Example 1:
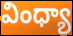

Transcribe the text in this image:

వింధ్యా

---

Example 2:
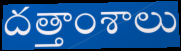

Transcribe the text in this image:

దత్తాంశాలు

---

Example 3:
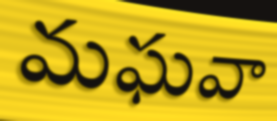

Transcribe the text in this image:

మఘవా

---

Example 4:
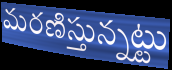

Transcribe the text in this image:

మరణిస్తున్నట్టు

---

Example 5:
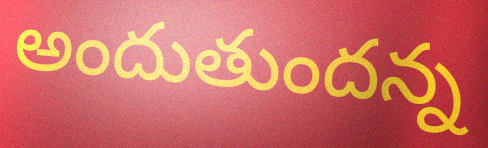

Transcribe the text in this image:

అందుతుందన్న